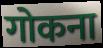
गोकना